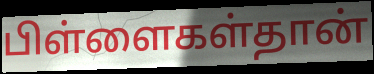
பிள்ளைகள்தான்